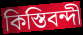
কিস্তিবন্দী